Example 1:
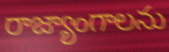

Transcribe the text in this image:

రాజ్యాంగాలను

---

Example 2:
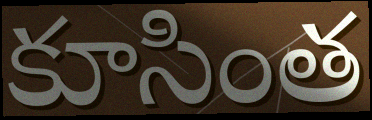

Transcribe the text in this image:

కూసింత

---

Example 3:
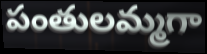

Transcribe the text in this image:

పంతులమ్మగా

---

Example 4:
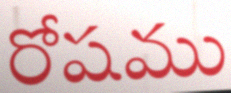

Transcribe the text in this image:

రోషము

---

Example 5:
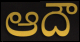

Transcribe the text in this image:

ఆదౌ